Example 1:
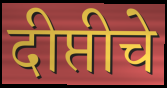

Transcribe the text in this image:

दीप्तीचे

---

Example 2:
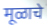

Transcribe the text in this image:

मूळाचे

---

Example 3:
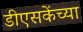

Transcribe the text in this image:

डीएसकेंच्या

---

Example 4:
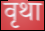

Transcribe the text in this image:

वृथा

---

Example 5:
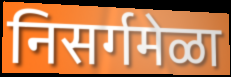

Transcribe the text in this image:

निसर्गमेळा